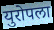
युरोपला